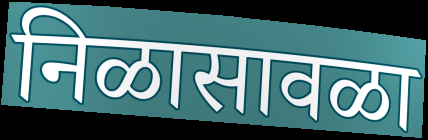
निळासावळा